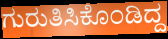
ಗುರುತಿಸಿಕೊಂಡಿದ್ದ